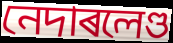
নেদাৰলেণ্ড